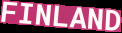
FINLAND